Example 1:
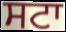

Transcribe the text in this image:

ਸਟਾ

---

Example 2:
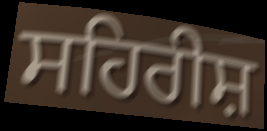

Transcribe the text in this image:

ਸਹਿਰੀਸ਼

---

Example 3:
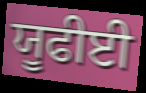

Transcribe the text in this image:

ਯੂਫੀਈ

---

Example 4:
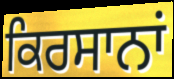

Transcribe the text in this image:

ਕਿਰਸਾਨਾਂ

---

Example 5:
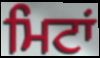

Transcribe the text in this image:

ਮਿਟਾਂ